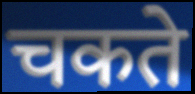
चकते